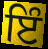
ਇੰ